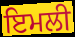
ਇਮਲੀ